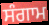
ਸੰਗਾਮ